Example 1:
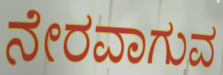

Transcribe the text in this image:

ನೇರವಾಗುವ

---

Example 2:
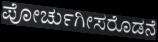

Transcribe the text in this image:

ಪೋರ್ಚುಗೀಸರೊಡನೆ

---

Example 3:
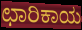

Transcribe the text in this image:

ಛಾರಿಕಾಯ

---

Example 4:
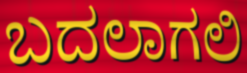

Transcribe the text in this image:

ಬದಲಾಗಲಿ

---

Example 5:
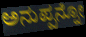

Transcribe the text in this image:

ಅನುಪ್ಪನ್ನೋ